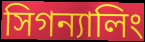
সিগন্যালিং